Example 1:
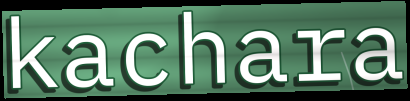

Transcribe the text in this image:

kachara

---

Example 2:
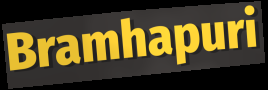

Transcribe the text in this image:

Bramhapuri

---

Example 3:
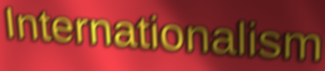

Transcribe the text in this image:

Internationalism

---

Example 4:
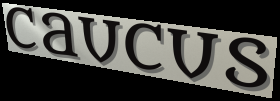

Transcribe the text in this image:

caucus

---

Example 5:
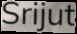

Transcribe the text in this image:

Srijut